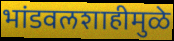
भांडवलशाहीमुळे